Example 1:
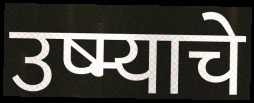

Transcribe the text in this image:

उष्म्याचे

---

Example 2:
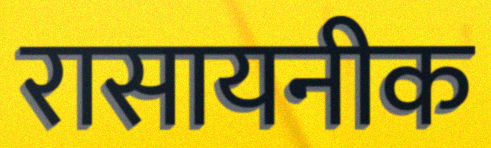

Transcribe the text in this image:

रासायनीक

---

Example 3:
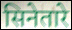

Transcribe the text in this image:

सिनेतारे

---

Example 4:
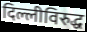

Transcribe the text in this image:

दिल्लीविरुद्ध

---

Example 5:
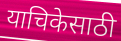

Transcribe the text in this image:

याचिकेसाठी